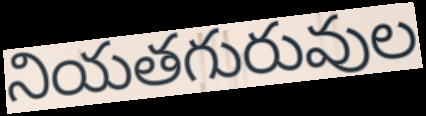
నియతగురువుల